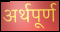
अर्थपूर्ण